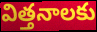
విత్తనాలకు